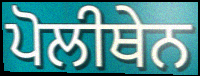
ਪੋਲੀਥੇਨ